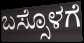
ಬಸ್ಸೊಳಗೆ